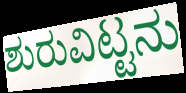
ಶುರುವಿಟ್ಟನು